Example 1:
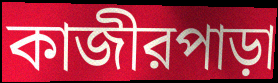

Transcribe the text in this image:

কাজীরপাড়া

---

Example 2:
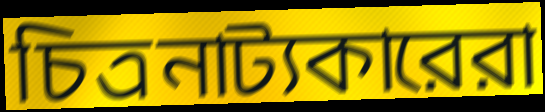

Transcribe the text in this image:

চিত্রনাট্যকারেরা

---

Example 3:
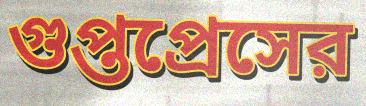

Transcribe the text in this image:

গুপ্তপ্রেসের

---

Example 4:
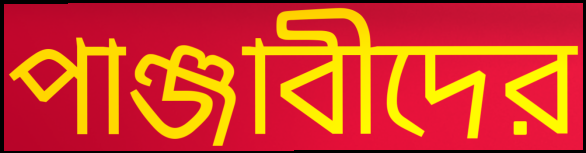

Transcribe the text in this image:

পাঞ্জাবীদের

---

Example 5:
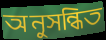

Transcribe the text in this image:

অনুসন্ধিত